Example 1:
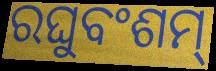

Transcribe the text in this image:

ରଘୁବଂଶମ୍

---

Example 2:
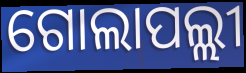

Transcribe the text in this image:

ଗୋଲାପଲ୍ଲୀ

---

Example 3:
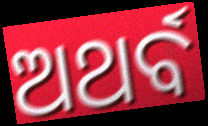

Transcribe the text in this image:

ଅଥର୍ବ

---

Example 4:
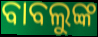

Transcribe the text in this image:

ବାବଲୁଙ୍କ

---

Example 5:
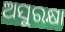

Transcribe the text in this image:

ଅସୁରକ୍ଷା